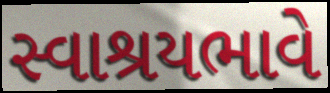
સ્વાશ્રયભાવે